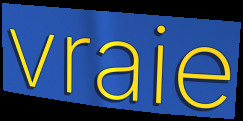
vraie